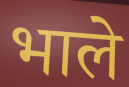
भाले